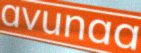
avunaa